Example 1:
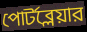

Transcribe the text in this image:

পোর্টব্লেয়ার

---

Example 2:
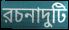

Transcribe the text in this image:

রচনাদুটি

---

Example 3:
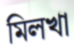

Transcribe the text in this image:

মিলখা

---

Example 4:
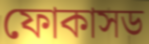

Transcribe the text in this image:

ফোকাসড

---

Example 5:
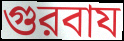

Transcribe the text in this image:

গুরবায